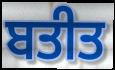
ਬਤੀਤ